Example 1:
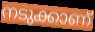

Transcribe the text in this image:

നടുക്കാണ്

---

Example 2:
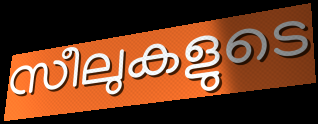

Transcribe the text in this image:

സീലുകളുടെ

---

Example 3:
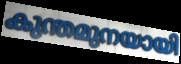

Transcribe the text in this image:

കുന്തമുനയായി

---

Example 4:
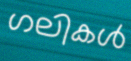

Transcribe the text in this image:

ഗലികൾ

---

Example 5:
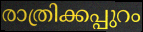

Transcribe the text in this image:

രാത്രിക്കപ്പുറം